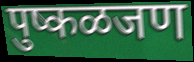
पुष्कळजण